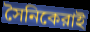
সৈনিকেরাই